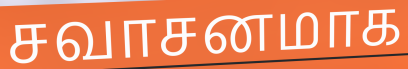
சவாசனமாக